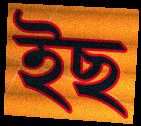
ইছ